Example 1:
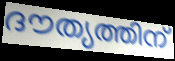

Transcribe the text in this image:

ദൗത്യത്തിന്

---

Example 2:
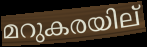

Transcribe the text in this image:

മറുകരയില്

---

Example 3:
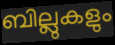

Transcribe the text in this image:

ബില്ലുകളും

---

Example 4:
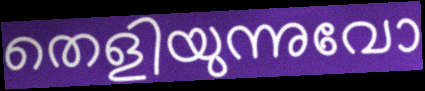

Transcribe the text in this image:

തെളിയുന്നുവോ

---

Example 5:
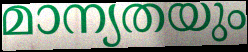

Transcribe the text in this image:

മാന്യതയും